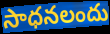
సాధనలందు